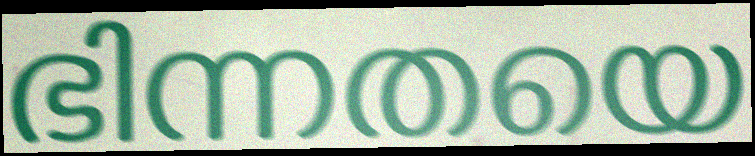
ഭിന്നതയെ